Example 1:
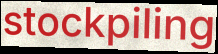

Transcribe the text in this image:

stockpiling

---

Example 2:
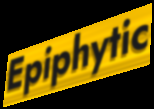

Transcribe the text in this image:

Epiphytic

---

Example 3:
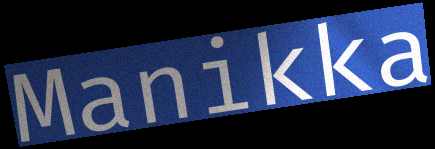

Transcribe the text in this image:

Manikka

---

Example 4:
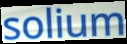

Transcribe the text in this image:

solium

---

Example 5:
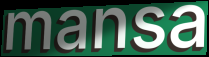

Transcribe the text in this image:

mansa